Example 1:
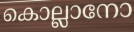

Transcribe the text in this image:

കൊല്ലാനോ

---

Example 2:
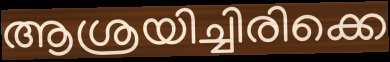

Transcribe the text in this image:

ആശ്രയിച്ചിരിക്കെ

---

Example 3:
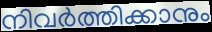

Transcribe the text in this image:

നിവർത്തിക്കാനും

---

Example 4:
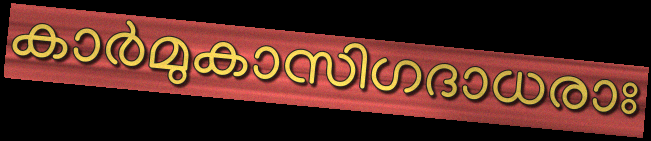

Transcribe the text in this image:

കാർമുകാസിഗദാധരാഃ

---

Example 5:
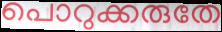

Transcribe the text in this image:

പൊറുക്കരുതേ